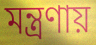
মন্ত্রণায়